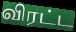
விரட்ட